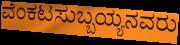
ವೆಂಕಟಸುಬ್ಬಯ್ಯನವರು